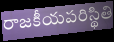
రాజకీయపరిస్థితి